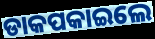
ଡାକପକାଇଲେ